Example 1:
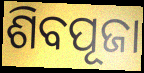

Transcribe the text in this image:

ଶିବପୂଜା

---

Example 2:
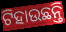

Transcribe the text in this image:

ଟିହାଉଛନ୍ତି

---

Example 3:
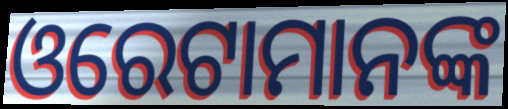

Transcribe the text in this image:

ଓରେଟାମାନଙ୍କ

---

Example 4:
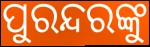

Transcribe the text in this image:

ପୁରନ୍ଦରଙ୍କୁ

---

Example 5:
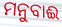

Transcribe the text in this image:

ମନୁବାଈ